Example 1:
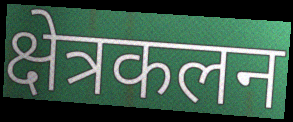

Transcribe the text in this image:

क्षेत्रकलन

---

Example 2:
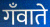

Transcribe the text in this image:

गँवाते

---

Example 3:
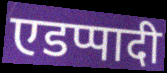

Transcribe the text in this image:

एडप्पादी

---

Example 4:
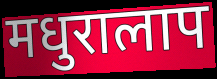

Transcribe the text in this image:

मधुरालाप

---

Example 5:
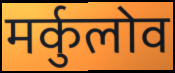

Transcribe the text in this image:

मर्कुलोव